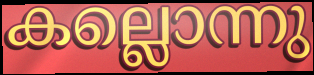
കല്ലൊന്നു